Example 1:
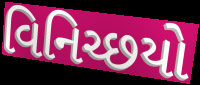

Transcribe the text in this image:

વિનિચ્છયો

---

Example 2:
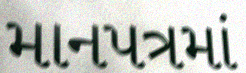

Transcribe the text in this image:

માનપત્રમાં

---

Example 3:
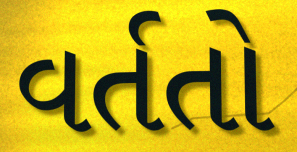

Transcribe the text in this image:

વર્તતો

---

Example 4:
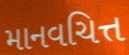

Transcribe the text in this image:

માનવચિત્ત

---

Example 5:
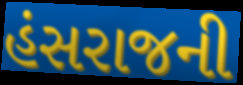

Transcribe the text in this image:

હંસરાજની